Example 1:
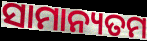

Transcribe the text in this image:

ସାମାନ୍ୟତମ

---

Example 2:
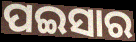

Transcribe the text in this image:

ପଇସାର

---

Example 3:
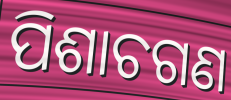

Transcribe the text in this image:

ପିଶାଚଗଣ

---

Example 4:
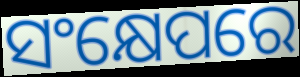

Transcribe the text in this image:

ସଂକ୍ଷେପରେ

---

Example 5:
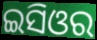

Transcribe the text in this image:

ଇସିଓର